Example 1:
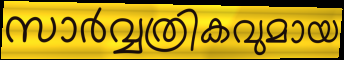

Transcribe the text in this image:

സാർവ്വത്രികവുമായ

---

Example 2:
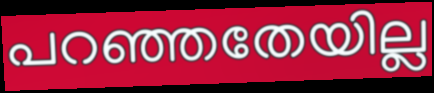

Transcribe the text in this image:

പറഞ്ഞതേയില്ല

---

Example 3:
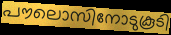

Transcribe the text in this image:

പൗലൊസിനോടുകൂടി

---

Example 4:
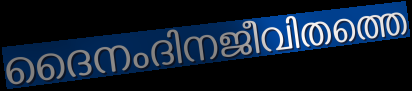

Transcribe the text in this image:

ദൈനംദിനജീവിതത്തെ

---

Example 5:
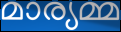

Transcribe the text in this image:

മാര്യമ്മ